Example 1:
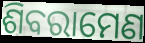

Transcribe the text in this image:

ଶିବରାମେଣ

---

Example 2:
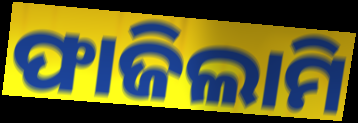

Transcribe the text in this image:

ଫାଜିଲାମି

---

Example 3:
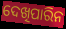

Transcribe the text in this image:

ଦେଖିପାରିନ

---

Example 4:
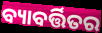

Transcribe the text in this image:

ବ୍ୟାବର୍ତ୍ତିତର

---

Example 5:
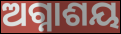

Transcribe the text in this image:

ଅଗ୍ନାଶୟ